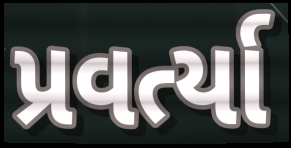
પ્રવર્ત્યા